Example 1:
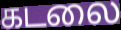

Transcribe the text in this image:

கடலை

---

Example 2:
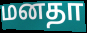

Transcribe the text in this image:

மனதா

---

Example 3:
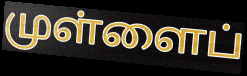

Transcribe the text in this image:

முள்ளைப்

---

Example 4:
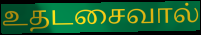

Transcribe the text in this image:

உதடசைவால்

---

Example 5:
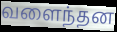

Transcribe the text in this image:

வளைந்தன